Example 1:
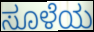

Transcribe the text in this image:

ಸೂಳೆಯ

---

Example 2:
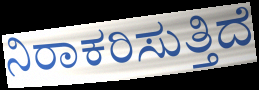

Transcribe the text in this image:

ನಿರಾಕರಿಸುತ್ತಿದೆ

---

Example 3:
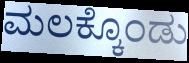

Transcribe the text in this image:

ಮಲಕ್ಕೊಂಡು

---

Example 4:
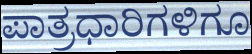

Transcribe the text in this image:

ಪಾತ್ರಧಾರಿಗಳಿಗೂ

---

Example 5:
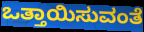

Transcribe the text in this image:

ಒತ್ತಾಯಿಸುವಂತೆ